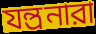
যন্ত্রনারা